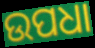
ଉପଧା